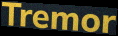
Tremor